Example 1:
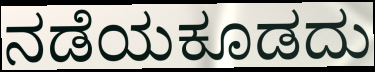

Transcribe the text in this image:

ನಡೆಯಕೂಡದು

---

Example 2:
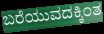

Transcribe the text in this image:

ಬರೆಯುವದಕ್ಕಿಂತ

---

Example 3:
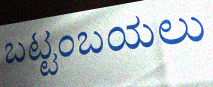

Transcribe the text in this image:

ಬಟ್ಟಂಬಯಲು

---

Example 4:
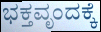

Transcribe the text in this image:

ಭಕ್ತವೃಂದಕ್ಕೆ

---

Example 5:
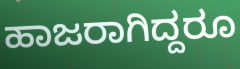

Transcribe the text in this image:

ಹಾಜರಾಗಿದ್ದರೂ